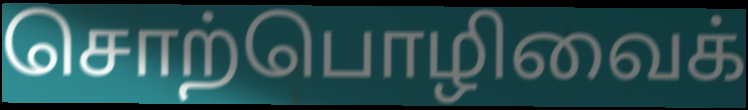
சொற்பொழிவைக்